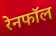
रेनफॉल